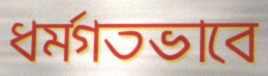
ধর্মগতভাবে